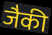
जैकी